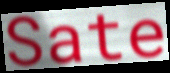
Sate